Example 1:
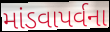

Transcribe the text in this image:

માંડવાપર્વના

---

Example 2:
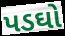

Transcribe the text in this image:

પડઘો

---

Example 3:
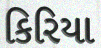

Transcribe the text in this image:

કિરિયા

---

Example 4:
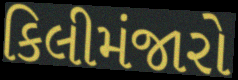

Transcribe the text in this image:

કિલીમંજારો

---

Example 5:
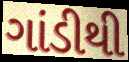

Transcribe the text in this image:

ગાંડીથી